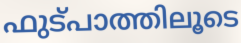
ഫുട്പാത്തിലൂടെ